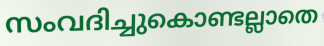
സംവദിച്ചുകൊണ്ടല്ലാതെ